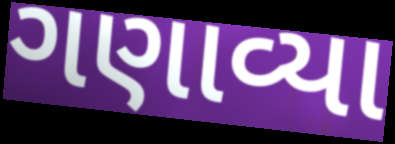
ગણાવ્યા